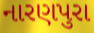
નારણપુરા